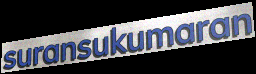
suransukumaran